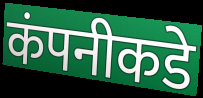
कंपनीकडे